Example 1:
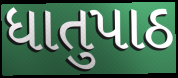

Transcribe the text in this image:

ધાતુપાઠ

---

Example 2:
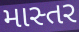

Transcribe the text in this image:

માસ્તર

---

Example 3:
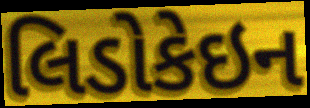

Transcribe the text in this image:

લિડોકેઇન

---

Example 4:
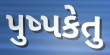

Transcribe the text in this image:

પુષ્પકેતુ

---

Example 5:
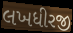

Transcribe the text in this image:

લખધીરજી